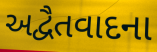
અદ્વૈતવાદના